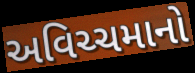
અવિચ્ચમાનો